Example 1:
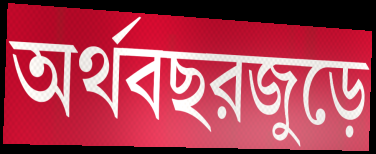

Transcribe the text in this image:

অর্থবছরজুড়ে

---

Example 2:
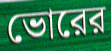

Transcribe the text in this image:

ভোরের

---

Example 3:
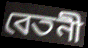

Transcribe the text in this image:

বেতনী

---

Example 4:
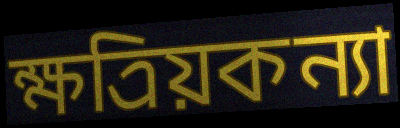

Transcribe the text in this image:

ক্ষত্রিয়কন্যা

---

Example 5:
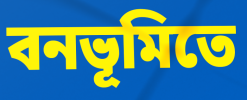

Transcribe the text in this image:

বনভূমিতে